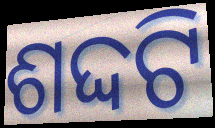
ଶଦ୍ଦଟି